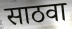
साठवा